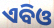
ଏବିଓ